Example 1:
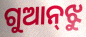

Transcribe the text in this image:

ଗୁଆନ୍‌ଝୁ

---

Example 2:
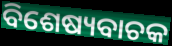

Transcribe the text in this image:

ବିଶେଷ୍ୟବାଚକ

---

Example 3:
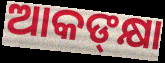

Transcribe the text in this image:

ଆକଙ୍‌କ୍ଷା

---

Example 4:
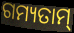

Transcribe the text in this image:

ଗମ୍ୟତାମ୍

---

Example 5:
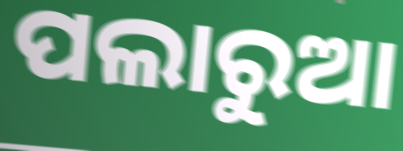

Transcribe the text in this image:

ପଲାରୁଆ